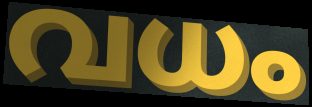
വധം